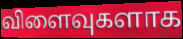
விளைவுகளாக